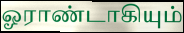
ஓராண்டாகியும்